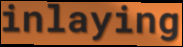
inlaying